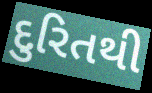
દુરિતથી